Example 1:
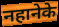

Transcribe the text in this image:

नहानेके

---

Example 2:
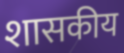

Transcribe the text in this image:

शासकीय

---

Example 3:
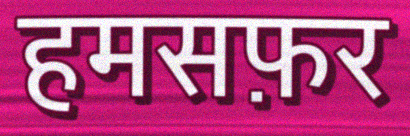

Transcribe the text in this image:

हमसफ़र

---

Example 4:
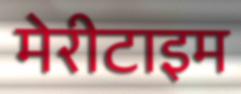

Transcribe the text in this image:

मेरीटाइम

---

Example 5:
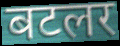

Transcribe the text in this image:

बटलर